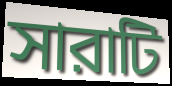
সারাটি